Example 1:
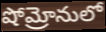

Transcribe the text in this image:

షోమ్రోనులో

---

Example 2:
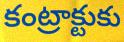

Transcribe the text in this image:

కంట్రాక్టుకు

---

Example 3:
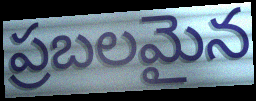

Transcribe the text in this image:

ప్రబలమైన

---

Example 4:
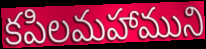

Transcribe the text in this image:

కపిలమహాముని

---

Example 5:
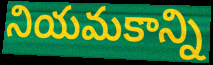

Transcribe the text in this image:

నియమకాన్ని